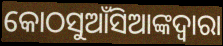
କୋଠସୁଆଁସିଆଙ୍କଦ୍ବାରା